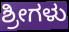
ಶ್ರೀಗಳು